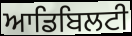
ਆਡਿਬਿਲਟੀ